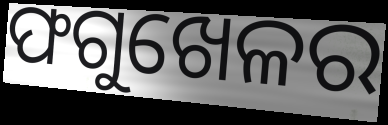
ଫଗୁଖେଳର